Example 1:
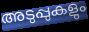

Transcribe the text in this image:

അടുപ്പുകളും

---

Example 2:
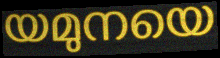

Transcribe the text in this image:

യമുനയെ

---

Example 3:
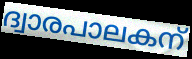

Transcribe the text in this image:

ദ്വാരപാലകന്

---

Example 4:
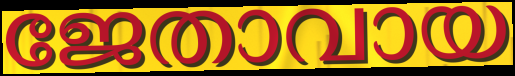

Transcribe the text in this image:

ജേതാവായ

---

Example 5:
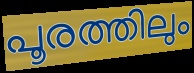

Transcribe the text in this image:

പൂരത്തിലും